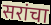
सरांचा